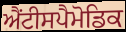
ਐਂਟੀਸਪੈਮੋਡਿਕ